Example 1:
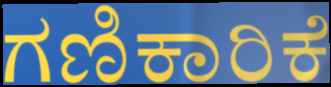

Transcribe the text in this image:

ಗಣಿಕಾರಿಕೆ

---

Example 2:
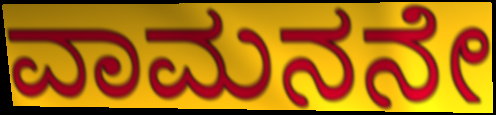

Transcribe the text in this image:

ವಾಮನನೇ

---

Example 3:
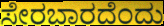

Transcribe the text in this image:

ಸೇರಬಾರದೆಂದು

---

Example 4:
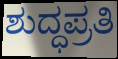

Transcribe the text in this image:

ಶುದ್ಧಪ್ರತಿ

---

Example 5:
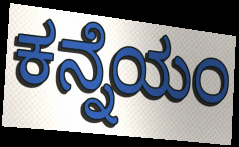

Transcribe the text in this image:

ಕನ್ನೆಯಂ